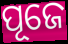
ପୂଜେ